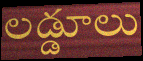
లడ్డూలు